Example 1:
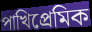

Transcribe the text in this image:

পাখিপ্রেমিক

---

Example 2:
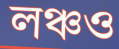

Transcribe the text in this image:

লঞ্চও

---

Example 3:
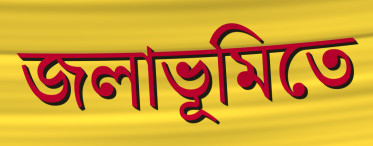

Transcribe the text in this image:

জলাভূমিতে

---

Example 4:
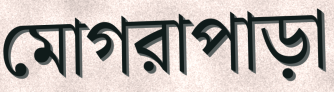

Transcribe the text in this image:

মোগরাপাড়া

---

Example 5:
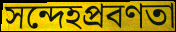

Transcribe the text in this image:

সন্দেহপ্রবণতা